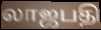
லாஜபதி